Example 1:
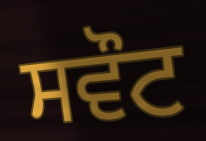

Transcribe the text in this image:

ਸਵੌਟ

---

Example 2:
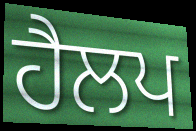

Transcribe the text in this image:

ਹੈਲਪ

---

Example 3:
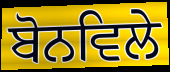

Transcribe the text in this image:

ਬੋਨਵਿਲੇ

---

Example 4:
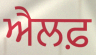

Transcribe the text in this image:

ਐਲਫ਼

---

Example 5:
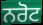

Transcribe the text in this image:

ਨਰੋਟ